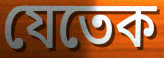
যেতেক